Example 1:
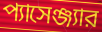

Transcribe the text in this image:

প্যাসেঞ্জ্যার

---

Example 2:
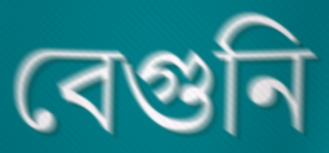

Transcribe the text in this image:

বেগুনি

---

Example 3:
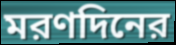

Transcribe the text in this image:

মরণদিনের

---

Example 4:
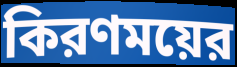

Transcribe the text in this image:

কিরণময়ের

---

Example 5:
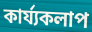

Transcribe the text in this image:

কার্য্যকলাপ